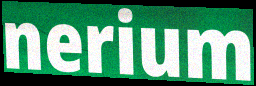
nerium